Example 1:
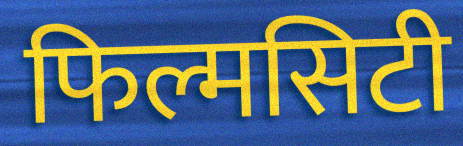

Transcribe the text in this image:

फिल्मसिटी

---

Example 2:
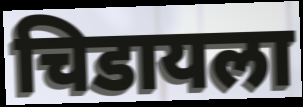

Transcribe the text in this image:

चिडायला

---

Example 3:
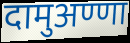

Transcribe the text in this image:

दामुअण्णा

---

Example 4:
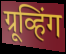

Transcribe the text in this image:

ग्रूव्हिंग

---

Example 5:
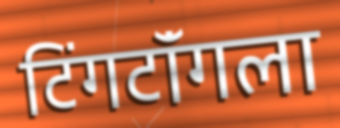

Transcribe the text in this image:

टिंगटॉंगला